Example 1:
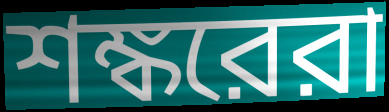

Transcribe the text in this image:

শঙ্করেরা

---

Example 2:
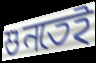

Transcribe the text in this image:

শুনতেই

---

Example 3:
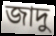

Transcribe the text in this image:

জাদু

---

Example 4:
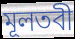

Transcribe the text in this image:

মূলতবী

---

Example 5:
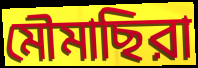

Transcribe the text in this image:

মৌমাছিরা